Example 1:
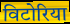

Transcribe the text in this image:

विटोरिया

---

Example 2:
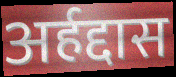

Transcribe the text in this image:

अर्हद्दास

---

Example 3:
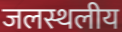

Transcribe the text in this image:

जलस्थलीय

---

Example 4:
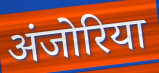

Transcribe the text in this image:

अंजोरिया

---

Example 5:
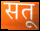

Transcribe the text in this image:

सतू